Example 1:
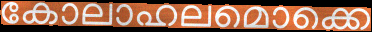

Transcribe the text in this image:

കോലാഹലമൊക്കെ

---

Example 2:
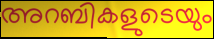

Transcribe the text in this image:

അറബികളുടെയും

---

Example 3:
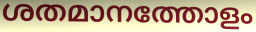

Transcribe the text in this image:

ശതമാനത്തോളം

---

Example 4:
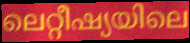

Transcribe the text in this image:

ലെറ്റീഷ്യയിലെ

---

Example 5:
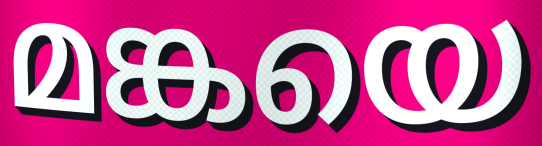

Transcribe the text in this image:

മങ്കയെ